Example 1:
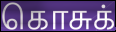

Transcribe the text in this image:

கொசுக்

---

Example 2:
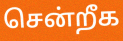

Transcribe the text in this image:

சென்றீக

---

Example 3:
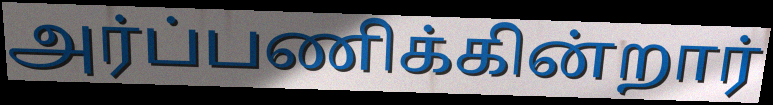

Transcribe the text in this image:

அர்ப்பணிக்கின்றார்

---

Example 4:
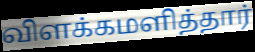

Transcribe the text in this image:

விளக்கமளித்தார்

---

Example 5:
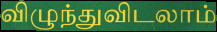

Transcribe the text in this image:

விழுந்துவிடலாம்